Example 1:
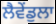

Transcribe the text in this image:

ਲੈਵੇਂਡੁਲਾ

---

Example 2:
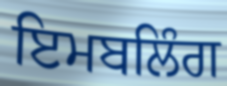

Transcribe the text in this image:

ਇਮਬਲਿੰਗ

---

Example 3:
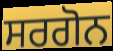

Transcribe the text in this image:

ਸਰਗੋਨ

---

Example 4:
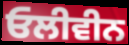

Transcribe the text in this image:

ਓਲੀਵੀਨ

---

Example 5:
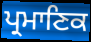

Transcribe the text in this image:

ਪ੍ਰਮਾਣਿਕ